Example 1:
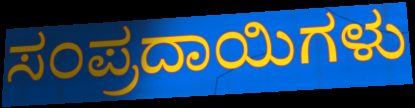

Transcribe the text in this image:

ಸಂಪ್ರದಾಯಿಗಳು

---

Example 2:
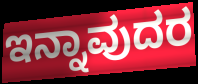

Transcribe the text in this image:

ಇನ್ನಾವುದರ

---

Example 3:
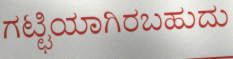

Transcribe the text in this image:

ಗಟ್ಟಿಯಾಗಿರಬಹುದು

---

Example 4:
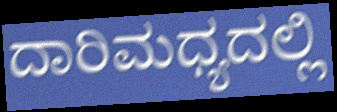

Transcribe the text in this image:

ದಾರಿಮಧ್ಯದಲ್ಲಿ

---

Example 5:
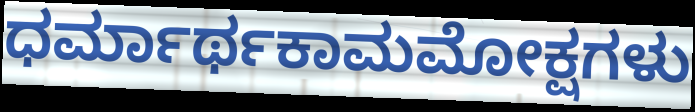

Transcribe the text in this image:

ಧರ್ಮಾರ್ಥಕಾಮಮೋಕ್ಷಗಳು